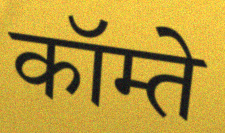
कॉम्ते